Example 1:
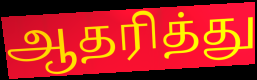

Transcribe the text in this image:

ஆதரித்து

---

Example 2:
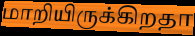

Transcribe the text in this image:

மாறியிருக்கிறதா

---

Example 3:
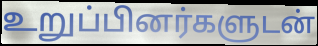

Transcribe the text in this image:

உறுப்பினர்களுடன்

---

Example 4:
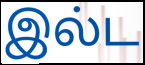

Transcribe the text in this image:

இல்ட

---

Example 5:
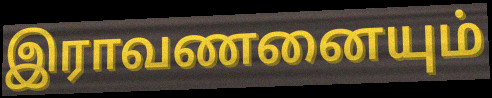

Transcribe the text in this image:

இராவணனையும்